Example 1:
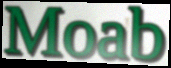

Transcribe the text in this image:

Moab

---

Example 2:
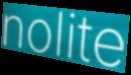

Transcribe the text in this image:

nolite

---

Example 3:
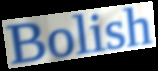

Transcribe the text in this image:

Bolish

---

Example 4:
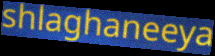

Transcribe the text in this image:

shlaghaneeya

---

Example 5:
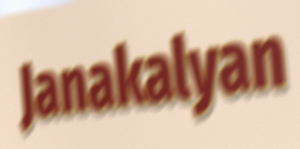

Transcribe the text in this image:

Janakalyan